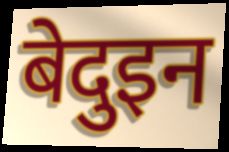
बेदुइन